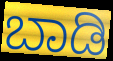
ಬಾಡಿ